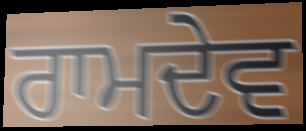
ਰਾਮਦੇਵ